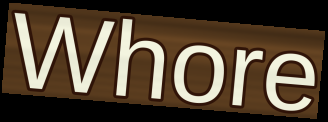
Whore